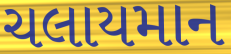
ચલાયમાન